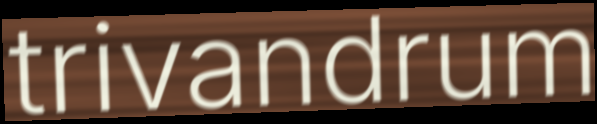
trivandrum